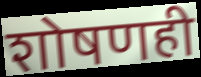
शोषणही